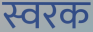
स्वरक